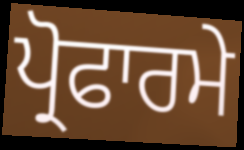
ਪ੍ਰੋਫਾਰਮੇ